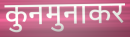
कुनमुनाकर